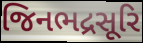
જિનભદ્રસૂરિ